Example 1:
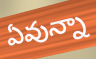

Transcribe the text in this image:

ఏవున్నా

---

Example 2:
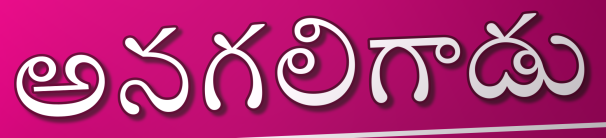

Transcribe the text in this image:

అనగలిగాడు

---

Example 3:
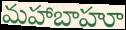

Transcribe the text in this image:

మహాబాహూ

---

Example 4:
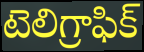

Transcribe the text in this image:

టెలిగ్రాఫిక్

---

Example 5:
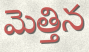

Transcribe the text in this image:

మెత్తిన